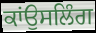
ਕਾਂਉਸਲਿੰਗ